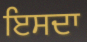
ਇਸਦਾ